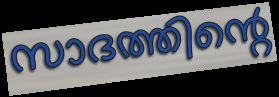
സാദത്തിന്റെ